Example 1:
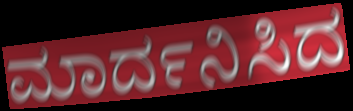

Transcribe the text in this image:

ಮಾರ್ದನಿಸಿದ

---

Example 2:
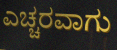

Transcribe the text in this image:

ಎಚ್ಚರವಾಗು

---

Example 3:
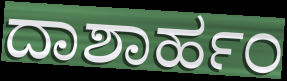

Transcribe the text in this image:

ದಾಶಾರ್ಹಂ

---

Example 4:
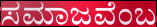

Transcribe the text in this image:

ಸಮಾಜವೆಂಬ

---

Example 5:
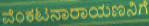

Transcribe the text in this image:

ವೆಂಕಟನಾರಾಯಣನಿಗೆ